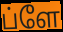
ப்ளே